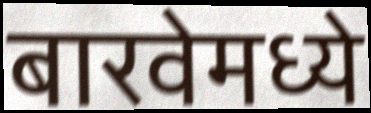
बारवेमध्ये